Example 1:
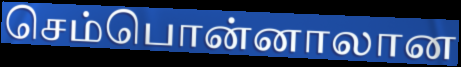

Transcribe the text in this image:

செம்பொன்னாலான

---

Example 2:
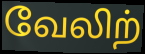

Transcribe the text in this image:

வேலிற்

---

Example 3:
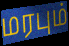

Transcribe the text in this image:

மரபும்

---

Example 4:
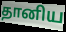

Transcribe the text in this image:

தானிய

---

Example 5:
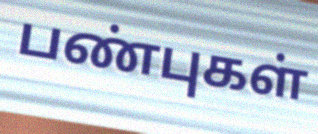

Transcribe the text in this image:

பண்புகள்